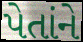
પેતાંને